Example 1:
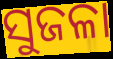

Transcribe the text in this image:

ସୁଜଳା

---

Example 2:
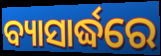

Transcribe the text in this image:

ବ୍ୟାସାର୍ଦ୍ଧରେ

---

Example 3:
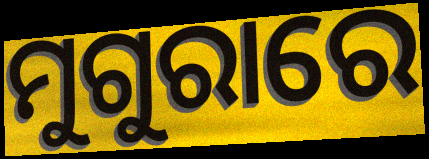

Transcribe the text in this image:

ମୁଗୁରାରେ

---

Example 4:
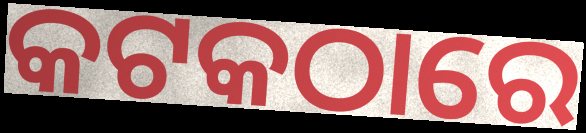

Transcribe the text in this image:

କଟକଠାରେ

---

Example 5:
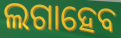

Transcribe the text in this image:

ଲଗାହେବ